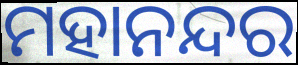
ମହାନନ୍ଦର